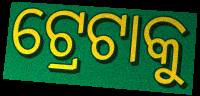
ଟ୍ରେଟାକୁ